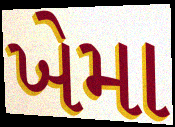
ખેમા